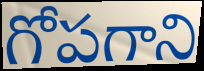
గోపగాని